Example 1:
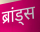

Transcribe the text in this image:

ब्रांड्स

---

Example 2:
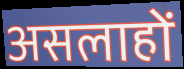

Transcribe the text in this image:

असलाहों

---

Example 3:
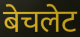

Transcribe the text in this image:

बेचलेट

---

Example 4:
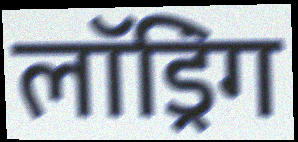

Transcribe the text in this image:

लॉड्रिंग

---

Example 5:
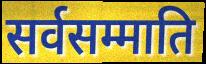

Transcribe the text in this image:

सर्वसम्माति